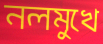
নলমুখে